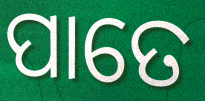
ପାତେ